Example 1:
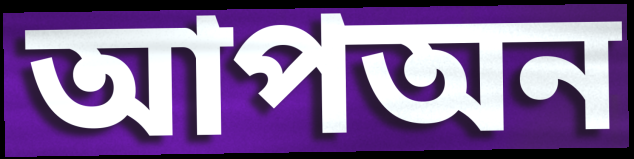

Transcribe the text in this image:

আপঅন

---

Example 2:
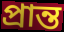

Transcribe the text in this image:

প্রান্ত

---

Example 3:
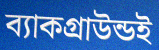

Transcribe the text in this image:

ব্যাকগ্রাউন্ডই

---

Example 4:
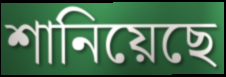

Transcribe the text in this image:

শানিয়েছে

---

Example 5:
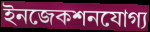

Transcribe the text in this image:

ইনজেকশনযোগ্য